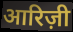
आरिज़ी